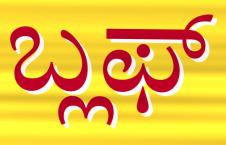
ಬ್ಲಫ್